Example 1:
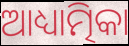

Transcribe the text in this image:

ଆଧ୍ୟାତ୍ମିକା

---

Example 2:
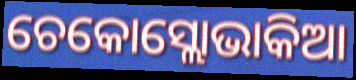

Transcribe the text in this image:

ଚେକୋସ୍ଲୋଭାକିଆ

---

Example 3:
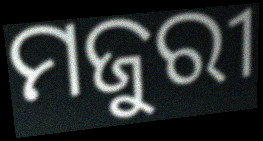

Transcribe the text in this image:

ମଜୁରୀ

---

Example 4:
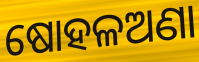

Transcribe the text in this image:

ଷୋହଳଅଣା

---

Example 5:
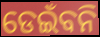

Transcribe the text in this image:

ଡେଇଁବନି